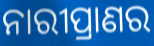
ନାରୀପ୍ରାଣର